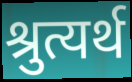
श्रुत्यर्थ